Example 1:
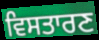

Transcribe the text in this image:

ਵਿਸਤਾਰਣ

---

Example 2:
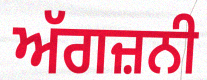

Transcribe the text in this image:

ਅੱਗਜ਼ਨੀ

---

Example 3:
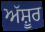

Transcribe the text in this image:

ਅੱਸ਼ੂਰ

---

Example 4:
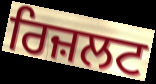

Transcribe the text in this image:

ਰਿਜ਼ਲਟ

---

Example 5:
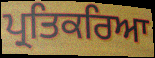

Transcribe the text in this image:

ਪ੍ਰਤਿਕਰਿਆ